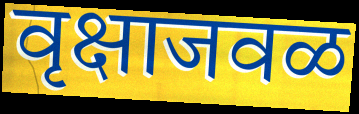
वृक्षाजवळ